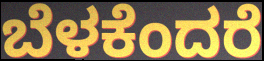
ಬೆಳಕೆಂದರೆ